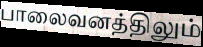
பாலைவனத்திலும்